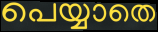
പെയ്യാതെ